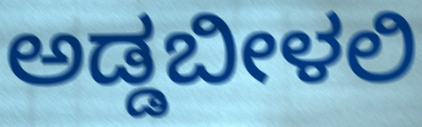
ಅಡ್ಡಬೀಳಲಿ